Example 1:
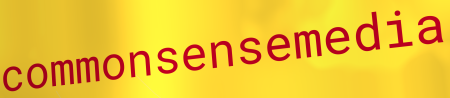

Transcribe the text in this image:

commonsensemedia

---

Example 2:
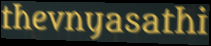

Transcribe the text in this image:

thevnyasathi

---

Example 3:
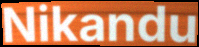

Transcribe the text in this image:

Nikandu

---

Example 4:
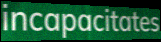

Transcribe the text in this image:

incapacitates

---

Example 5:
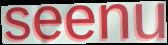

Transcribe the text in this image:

seenu